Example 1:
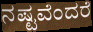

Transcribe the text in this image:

ನಷ್ಟವೆಂದರೆ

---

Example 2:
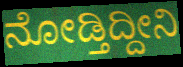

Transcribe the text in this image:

ನೋಡ್ತಿದ್ದೀನಿ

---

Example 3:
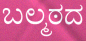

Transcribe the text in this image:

ಬಲ್ಮಠದ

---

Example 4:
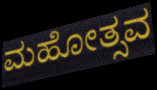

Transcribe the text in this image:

ಮಹೋತ್ಸವ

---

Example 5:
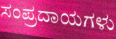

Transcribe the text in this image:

ಸಂಪ್ರದಾಯಗಳು